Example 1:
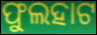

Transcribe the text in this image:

ଫୁଲହାଟ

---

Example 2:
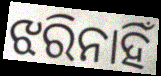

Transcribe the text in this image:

ଝରିନାହିଁ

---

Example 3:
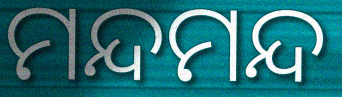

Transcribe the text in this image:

ମନ୍ଦମନ୍ଦ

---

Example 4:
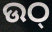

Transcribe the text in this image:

ଉଠ୍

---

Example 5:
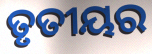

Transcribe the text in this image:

ତୃତୀୟର